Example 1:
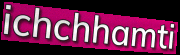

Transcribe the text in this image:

ichchhamti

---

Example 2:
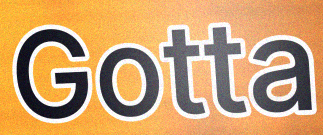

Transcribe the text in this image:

Gotta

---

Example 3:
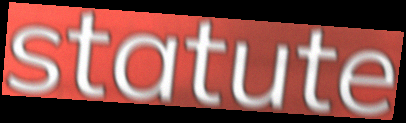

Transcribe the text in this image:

statute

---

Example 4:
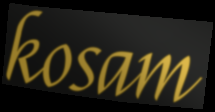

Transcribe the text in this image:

kosam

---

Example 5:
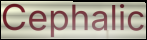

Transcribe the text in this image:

Cephalic